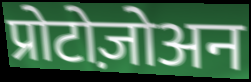
प्रोटोज़ोअन